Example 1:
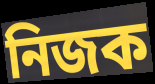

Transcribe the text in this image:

নিজক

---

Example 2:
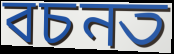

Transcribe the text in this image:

বচনত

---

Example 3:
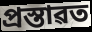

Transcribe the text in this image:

প্ৰস্তাৱত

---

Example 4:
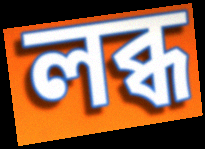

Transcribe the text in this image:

লব্ধ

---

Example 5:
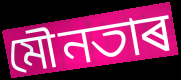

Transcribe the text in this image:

মৌনতাৰ